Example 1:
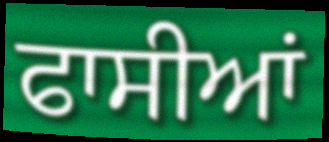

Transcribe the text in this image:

ਫਾਸੀਆਂ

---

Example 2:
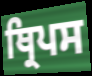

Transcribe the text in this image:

ਥ੍ਰਿਪਸ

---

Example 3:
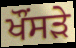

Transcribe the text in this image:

ਖੌਂਸੜੇ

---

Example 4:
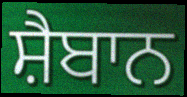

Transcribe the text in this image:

ਸ਼ੈਬਾਨ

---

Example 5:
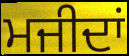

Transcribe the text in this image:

ਮਜੀਦਾਂ